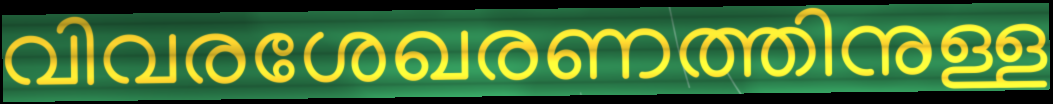
വിവരശേഖരണത്തിനുള്ള